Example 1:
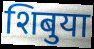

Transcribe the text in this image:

शिबुया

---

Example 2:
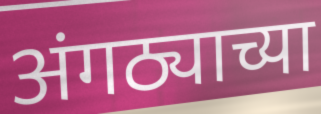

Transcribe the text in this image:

अंगठ्याच्या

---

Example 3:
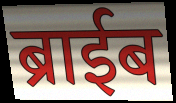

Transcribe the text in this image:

ब्राईब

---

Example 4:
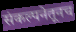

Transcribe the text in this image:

संकल्पनेतूनच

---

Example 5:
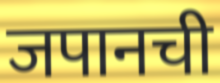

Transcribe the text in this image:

जपानची